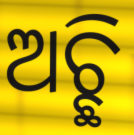
ଅଚ୍ଛି